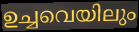
ഉച്ചവെയിലും